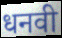
धनवी